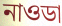
নাওডা